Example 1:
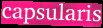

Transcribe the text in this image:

capsularis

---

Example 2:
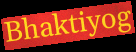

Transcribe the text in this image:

Bhaktiyog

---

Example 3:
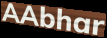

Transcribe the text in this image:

AAbhar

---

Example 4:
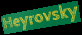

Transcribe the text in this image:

Heyrovsky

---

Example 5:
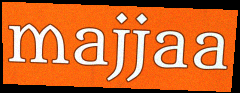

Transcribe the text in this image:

majjaa